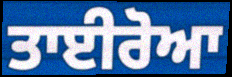
ਤਾਈਰੋਆ